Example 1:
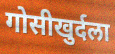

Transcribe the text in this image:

गोसीखुर्दला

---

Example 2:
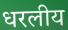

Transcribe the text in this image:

धरलीय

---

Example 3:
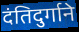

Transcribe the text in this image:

दंतिदुर्गाने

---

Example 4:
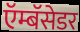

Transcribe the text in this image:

ऍम्बॅसेडर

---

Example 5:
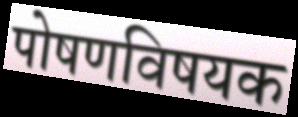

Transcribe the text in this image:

पोषणविषयक